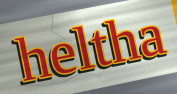
heltha